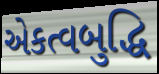
એકત્વબુદ્ધિ